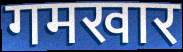
गमखार